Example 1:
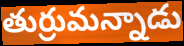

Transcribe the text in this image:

తుర్రుమన్నాడు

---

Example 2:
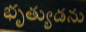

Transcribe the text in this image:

భృత్యుడను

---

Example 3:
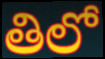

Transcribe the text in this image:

తిలో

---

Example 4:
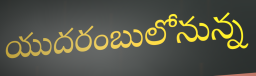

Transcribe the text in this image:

యుదరంబులోనున్న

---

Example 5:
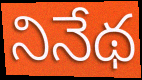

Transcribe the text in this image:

నినేథ